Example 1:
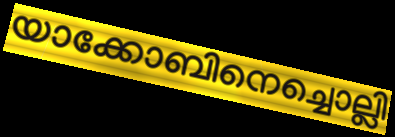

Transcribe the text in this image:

യാക്കോബിനെച്ചൊല്ലി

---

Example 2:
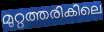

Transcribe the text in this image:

മുറ്റത്തരികിലെ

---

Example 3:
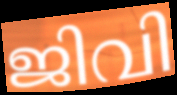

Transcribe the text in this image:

ജിവി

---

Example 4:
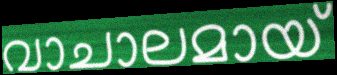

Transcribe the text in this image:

വാചാലമായ്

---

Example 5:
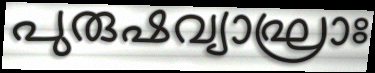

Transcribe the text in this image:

പുരുഷവ്യാഘ്രാഃ